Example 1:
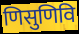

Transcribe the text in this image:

णिसुणिवि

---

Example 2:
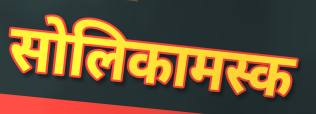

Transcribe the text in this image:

सोलिकामस्क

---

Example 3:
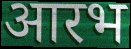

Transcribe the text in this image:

आरभ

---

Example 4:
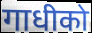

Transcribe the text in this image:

गाधीको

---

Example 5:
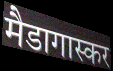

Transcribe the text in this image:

मैडागास्कर